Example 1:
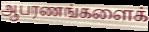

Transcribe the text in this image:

ஆபரணங்களைக்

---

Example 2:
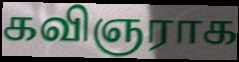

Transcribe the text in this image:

கவிஞராக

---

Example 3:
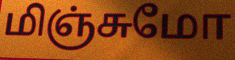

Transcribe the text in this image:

மிஞ்சுமோ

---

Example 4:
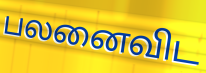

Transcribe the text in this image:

பலனைவிட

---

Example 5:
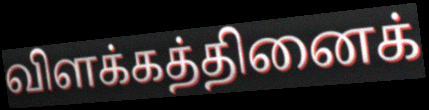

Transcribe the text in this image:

விளக்கத்தினைக்